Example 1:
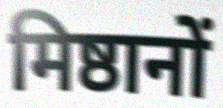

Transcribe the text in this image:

मिष्ठानों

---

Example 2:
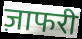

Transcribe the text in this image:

ज़ाफरी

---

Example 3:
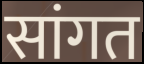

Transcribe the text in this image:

सांगत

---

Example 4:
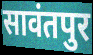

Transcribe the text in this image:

सावंतपुर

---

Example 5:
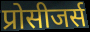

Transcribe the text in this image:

प्रोसीजर्स